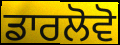
ਡਾਰਲੋਵੋ